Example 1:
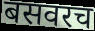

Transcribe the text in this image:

बसवरच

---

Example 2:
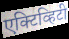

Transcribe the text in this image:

एक्टिव्हिटी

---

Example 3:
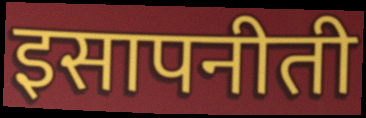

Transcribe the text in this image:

इसापनीती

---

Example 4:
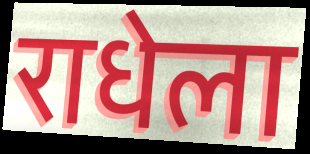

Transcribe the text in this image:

राधेला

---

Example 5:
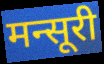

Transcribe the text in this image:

मन्सूरी